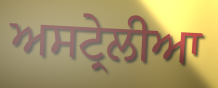
ਅਸਟ੍ਰੇਲੀਆ